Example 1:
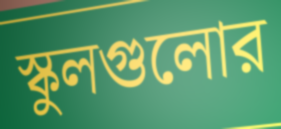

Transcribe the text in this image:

স্কুলগুলোর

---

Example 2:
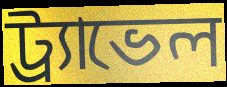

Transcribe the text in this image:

ট্র্যাভেল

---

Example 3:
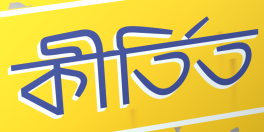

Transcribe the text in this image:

কীর্তিত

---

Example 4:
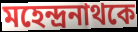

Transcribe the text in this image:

মহেন্দ্রনাথকে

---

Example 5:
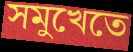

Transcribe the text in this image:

সমুখেতে